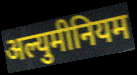
अल्युमीनियम